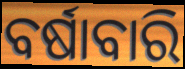
ବର୍ଷାବାରି